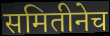
समितीनेच